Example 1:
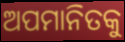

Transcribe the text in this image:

ଅପମାନିତକୁ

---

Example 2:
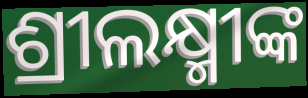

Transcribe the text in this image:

ଶ୍ରୀଲକ୍ଷ୍ମୀଙ୍କ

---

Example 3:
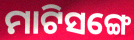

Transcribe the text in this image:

ମାଟିସଙ୍ଗେ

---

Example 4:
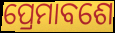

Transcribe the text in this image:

ପ୍ରେମାବଶେ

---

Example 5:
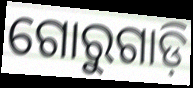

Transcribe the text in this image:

ଗୋରୁଗାଡ଼ି